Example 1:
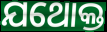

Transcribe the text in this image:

ଯଥୋକ୍ତ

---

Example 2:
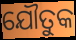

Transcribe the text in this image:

ଯୌତୁକ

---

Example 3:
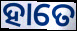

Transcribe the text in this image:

ହାତେ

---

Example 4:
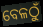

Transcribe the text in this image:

ବେଳଠୁଁ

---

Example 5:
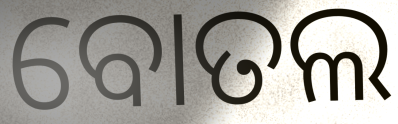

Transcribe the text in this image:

ବୋତଲ